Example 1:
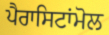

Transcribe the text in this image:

ਪੈਰਾਸਿਟਾਂਮੋਲ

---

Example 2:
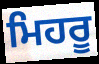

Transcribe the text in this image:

ਮਿਹਰੂ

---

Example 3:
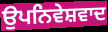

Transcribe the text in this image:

ਉਪਨਿਵੇਸ਼ਵਾਦ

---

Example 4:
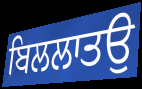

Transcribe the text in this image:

ਬਿਲਲਾਤਉ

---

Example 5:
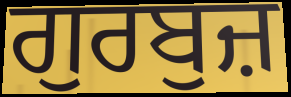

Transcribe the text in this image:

ਗੁਰਬੁਜ਼